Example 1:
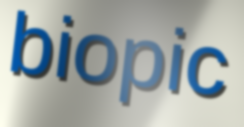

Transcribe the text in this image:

biopic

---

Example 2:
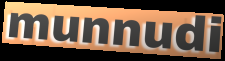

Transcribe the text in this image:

munnudi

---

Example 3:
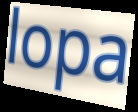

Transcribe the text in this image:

lopa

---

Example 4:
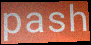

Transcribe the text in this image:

pash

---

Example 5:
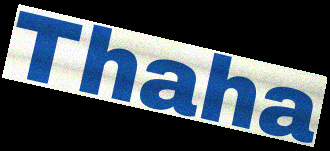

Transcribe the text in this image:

Thaha